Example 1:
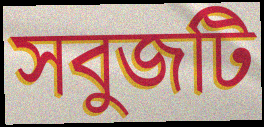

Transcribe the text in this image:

সবুজটি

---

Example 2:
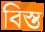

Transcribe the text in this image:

বিস্ত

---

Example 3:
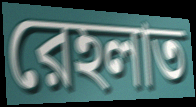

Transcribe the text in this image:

রেহলাত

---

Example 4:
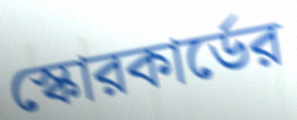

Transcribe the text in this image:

স্কোরকার্ডের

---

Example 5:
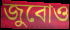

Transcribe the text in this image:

জুবোও